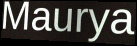
Maurya